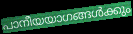
പാനീയയാഗങ്ങൾക്കും